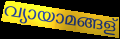
വ്യായാമങ്ങള്